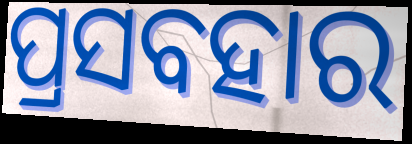
ପ୍ରସବହାର